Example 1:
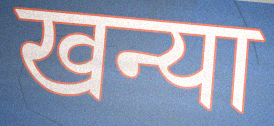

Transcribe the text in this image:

खन्या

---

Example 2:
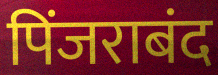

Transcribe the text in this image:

पिंजराबंद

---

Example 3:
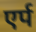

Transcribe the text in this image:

एर्प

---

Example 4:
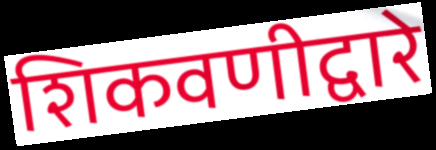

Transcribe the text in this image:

शिकवणीद्वारे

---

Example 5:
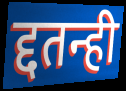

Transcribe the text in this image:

द्दतन्ही